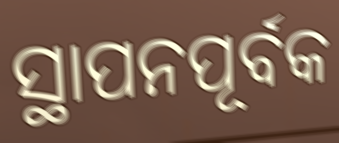
ସ୍ଥାପନପୂର୍ବକ